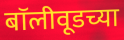
बॉलीवूडच्या